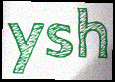
ysh